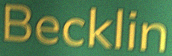
Becklin